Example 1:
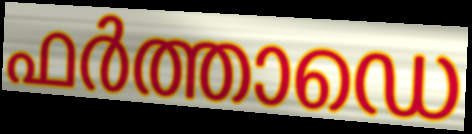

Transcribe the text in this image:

ഫർത്താഡെ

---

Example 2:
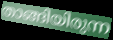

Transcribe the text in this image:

താങ്ങിയിരുന്ന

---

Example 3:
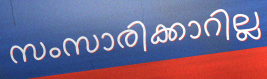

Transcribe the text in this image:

സംസാരിക്കാറില്ല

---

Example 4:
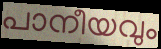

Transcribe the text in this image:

പാനീയവും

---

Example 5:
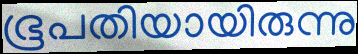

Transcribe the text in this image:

ഭൂപതിയായിരുന്നു